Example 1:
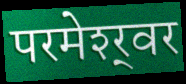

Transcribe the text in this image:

परमेश्र्वर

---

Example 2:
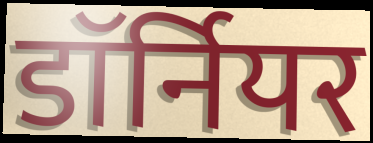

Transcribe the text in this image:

डॉर्नियर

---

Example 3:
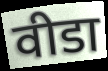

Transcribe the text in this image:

वीडा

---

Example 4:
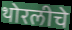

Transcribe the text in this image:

थोरलीचे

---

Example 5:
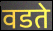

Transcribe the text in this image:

वडते